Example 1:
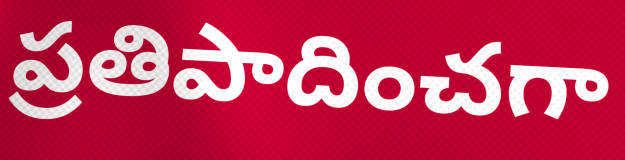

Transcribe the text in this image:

ప్రతిపాదించగా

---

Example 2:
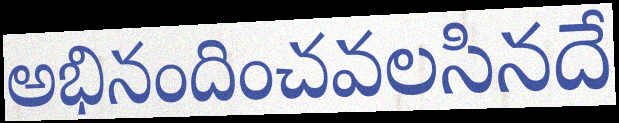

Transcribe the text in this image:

అభినందించవలసినదే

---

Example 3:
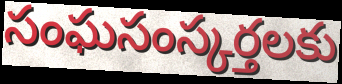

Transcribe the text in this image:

సంఘసంస్కర్తలకు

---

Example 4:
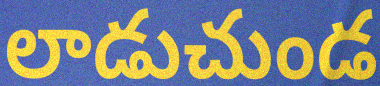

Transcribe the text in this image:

లాడుచుండ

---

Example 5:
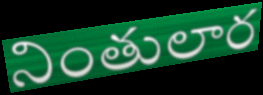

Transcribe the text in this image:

నింతులార